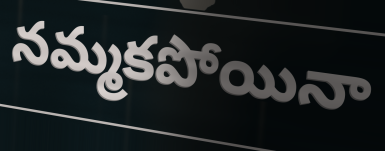
నమ్మకపోయినా